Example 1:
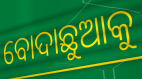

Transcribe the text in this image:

ବୋଦାଛୁଆକୁ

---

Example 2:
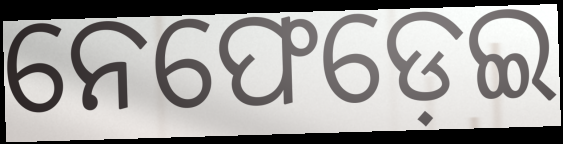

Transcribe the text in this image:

ନେଫେଡ଼େଇ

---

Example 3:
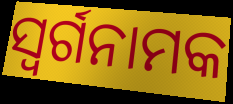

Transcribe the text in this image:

ସ୍ଵର୍ଗନାମକ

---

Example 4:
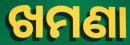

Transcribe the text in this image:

ଖମଣା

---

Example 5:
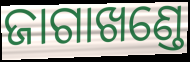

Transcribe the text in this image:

ଜାଗାଖଣ୍ଡେ